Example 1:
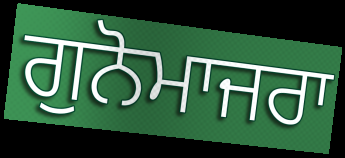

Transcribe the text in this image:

ਗੁਨੋਮਾਜਰਾ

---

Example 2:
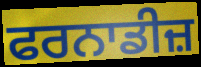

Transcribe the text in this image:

ਫਰਨਾਡੀਜ਼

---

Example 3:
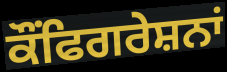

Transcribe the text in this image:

ਕੌਂਫਿਗਰੇਸ਼ਨਾਂ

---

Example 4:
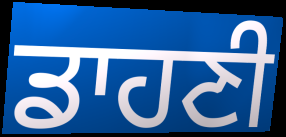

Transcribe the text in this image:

ਡਾਹਣੀ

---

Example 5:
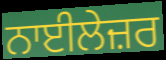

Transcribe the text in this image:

ਨਾਈਲੇਜ਼ਰ